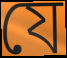
যে